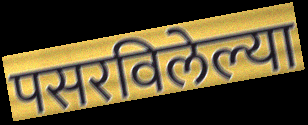
पसरविलेल्या